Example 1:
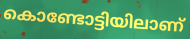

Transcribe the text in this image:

കൊണ്ടോട്ടിയിലാണ്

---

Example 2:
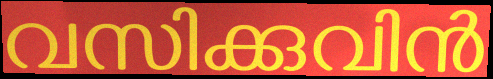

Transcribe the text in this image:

വസിക്കുവിൻ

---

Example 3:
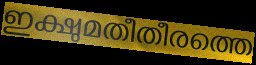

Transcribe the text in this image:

ഇക്ഷുമതീതീരത്തെ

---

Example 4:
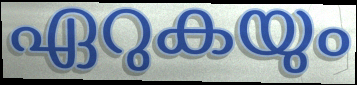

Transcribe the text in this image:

ഏറുകയും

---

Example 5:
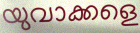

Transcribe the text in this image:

യുവാക്കളെ